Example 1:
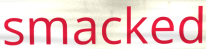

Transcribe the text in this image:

smacked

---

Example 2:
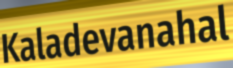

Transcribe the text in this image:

Kaladevanahal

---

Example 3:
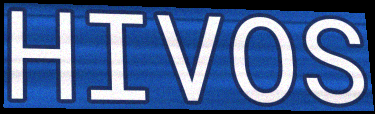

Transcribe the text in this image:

HIVOS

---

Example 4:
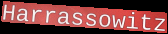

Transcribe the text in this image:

Harrassowitz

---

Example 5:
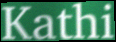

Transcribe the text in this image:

Kathi